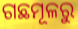
ଗଛମୂଳରୁ